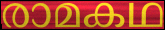
രാമകഥ